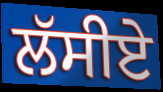
ਲੱਸੀਏ